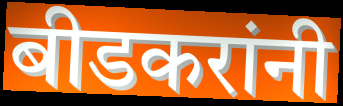
बीडकरांनी